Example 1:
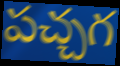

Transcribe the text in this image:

పచ్చగ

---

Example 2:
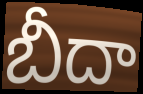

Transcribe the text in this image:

బీదా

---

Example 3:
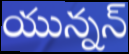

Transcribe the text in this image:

యున్నన్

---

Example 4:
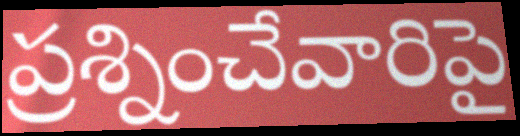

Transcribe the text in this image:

ప్రశ్నించేవారిపై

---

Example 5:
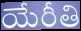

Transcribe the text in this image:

యేరీతి